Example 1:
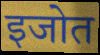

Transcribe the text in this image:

इजोत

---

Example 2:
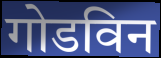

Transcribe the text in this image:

गोडविन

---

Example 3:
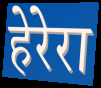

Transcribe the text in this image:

हेरेरा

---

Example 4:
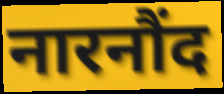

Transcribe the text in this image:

नारनौंद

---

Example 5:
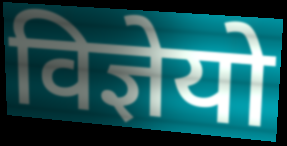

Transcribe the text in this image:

विज्ञेयो